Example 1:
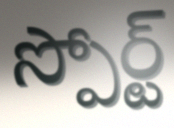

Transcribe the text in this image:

స్పోర్ట్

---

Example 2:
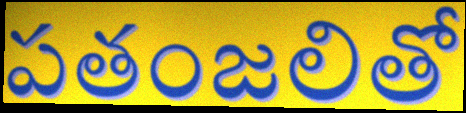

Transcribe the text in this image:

పతంజలితో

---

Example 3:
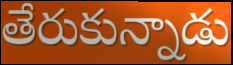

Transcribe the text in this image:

తేరుకున్నాడు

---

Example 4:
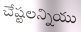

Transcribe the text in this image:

చేష్టలన్నియు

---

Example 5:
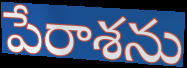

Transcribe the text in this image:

పేరాశను